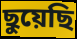
ছুয়েছি